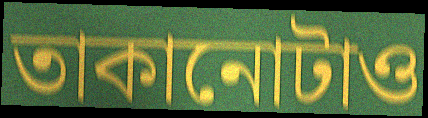
তাকানোটাও